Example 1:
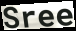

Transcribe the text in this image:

Sree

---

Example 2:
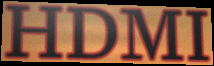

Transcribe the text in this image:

HDMI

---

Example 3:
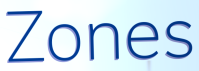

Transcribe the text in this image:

Zones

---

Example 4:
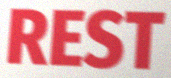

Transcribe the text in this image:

REST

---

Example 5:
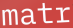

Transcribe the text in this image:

matr